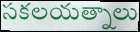
సకలయత్నాలు